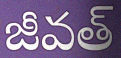
జీవత్